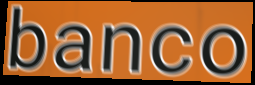
banco